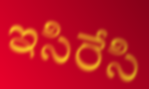
ఇసిరేసి